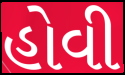
હોવી